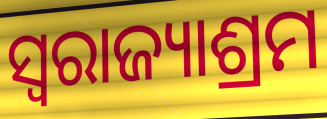
ସ୍ୱରାଜ୍ୟାଶ୍ରମ